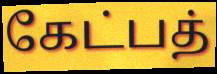
கேட்பத்